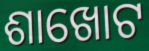
ଶାଖୋଟ